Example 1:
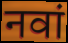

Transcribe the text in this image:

नवां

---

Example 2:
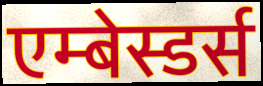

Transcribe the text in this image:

एम्बेस्डर्स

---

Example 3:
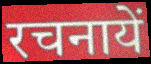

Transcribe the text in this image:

रचनायें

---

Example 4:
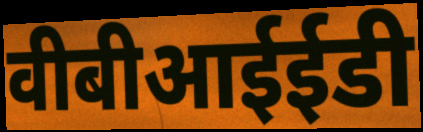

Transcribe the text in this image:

वीबीआईईडी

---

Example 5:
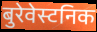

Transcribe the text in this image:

बुरेवेस्टनिक